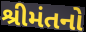
શ્રીમંતનો